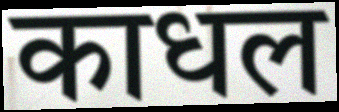
काधल